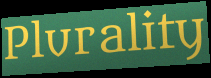
Plurality